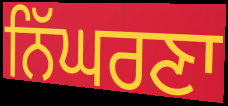
ਨਿੱਘਰਣਾ